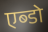
एब्डो